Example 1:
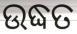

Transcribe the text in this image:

ଉଦ୍ଧତ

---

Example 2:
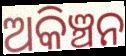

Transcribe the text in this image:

ଅକିଞ୍ଚନ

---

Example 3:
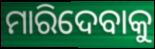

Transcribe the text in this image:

ମାରିଦେବାକୁ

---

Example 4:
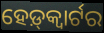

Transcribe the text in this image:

ହେଡ଼୍‌କ୍ୱାର୍ଟର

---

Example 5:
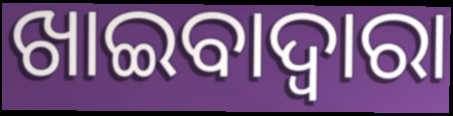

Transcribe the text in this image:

ଖାଇବାଦ୍ଵାରା